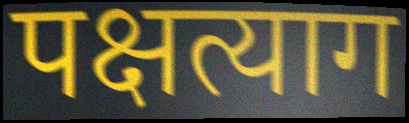
पक्षत्याग